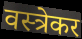
वस्त्रेकर